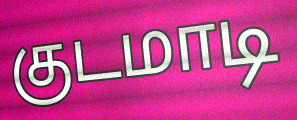
குடமாடி